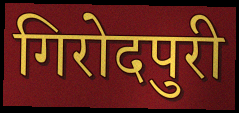
गिरोदपुरी